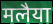
मलैया